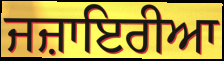
ਜਜ਼ਾਇਰੀਆ